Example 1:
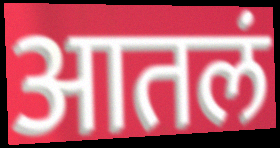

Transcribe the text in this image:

आतलं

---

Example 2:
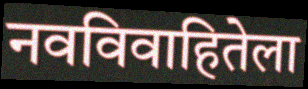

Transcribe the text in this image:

नवविवाहितेला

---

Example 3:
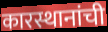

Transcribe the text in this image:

कारस्थानांची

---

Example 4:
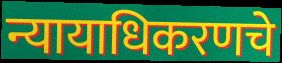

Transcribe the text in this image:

न्यायाधिकरणचे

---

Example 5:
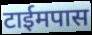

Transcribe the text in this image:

टाईमपास